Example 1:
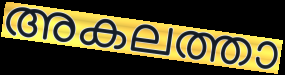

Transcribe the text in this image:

അകലത്താ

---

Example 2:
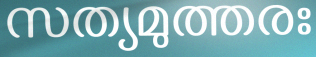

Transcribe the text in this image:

സത്യമുത്തരഃ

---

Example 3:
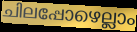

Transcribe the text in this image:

ചിലപ്പോഴെല്ലാം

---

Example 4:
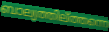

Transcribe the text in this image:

ബാല്യത്തില്ത്തന്നെ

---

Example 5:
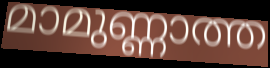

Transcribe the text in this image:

മാമുണ്ണാത്ത